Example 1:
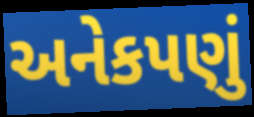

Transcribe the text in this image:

અનેકપણું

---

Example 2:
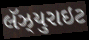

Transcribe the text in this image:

લૅઝ્યુરાઇટ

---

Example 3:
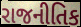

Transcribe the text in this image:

રાજનીતિક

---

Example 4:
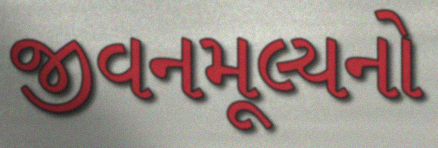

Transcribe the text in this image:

જીવનમૂલ્યનો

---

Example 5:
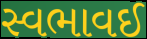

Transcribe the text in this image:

સ્વભાવઈ